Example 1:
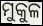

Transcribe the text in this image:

ମୁକୁଳ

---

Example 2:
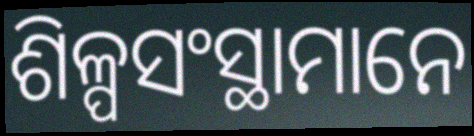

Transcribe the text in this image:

ଶିଳ୍ପସଂସ୍ଥାମାନେ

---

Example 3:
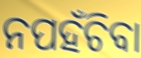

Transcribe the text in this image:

ନପହଁଚିବା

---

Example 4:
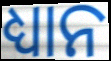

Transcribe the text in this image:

ଧ୍ୟାନ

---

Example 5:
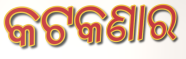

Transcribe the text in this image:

କଟକଣାର